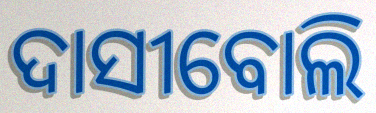
ଦାସୀବୋଲି